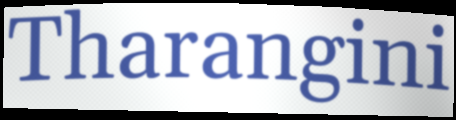
Tharangini